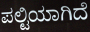
ಪಲ್ಟಿಯಾಗಿದೆ